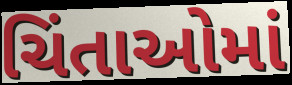
ચિંતાઓમાં